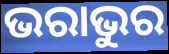
ଭରାଭୁର